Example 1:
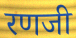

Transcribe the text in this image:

रणजी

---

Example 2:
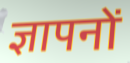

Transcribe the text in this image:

ज्ञापनों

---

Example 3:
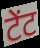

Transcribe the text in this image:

टेंट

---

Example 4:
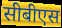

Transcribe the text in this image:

सीबीएस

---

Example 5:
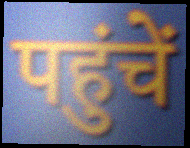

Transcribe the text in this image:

पहुंचें